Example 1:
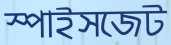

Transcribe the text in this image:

স্পাইসজেট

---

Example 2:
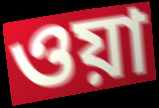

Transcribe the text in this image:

ওয়া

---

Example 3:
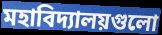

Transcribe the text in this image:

মহাবিদ্যালয়গুলো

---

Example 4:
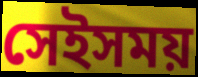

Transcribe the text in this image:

সেইসময়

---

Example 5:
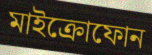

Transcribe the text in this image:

মাইক্রোফোন